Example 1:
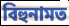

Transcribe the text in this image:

বিহুনামত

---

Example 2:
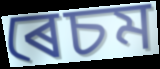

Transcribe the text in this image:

ৰেচম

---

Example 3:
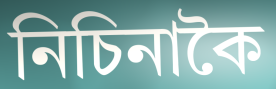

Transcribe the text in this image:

নিচিনাকৈ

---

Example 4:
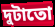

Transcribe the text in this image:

দুটাতো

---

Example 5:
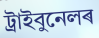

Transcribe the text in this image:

ট্ৰাইবুনেলৰ